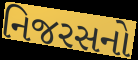
નિજરસનો